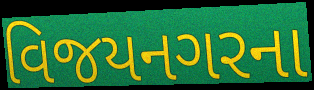
વિજયનગરના